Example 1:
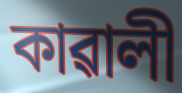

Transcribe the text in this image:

কাৱালী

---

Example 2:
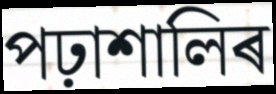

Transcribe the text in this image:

পঢ়াশালিৰ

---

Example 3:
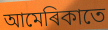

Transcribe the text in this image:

আমেৰিকাতে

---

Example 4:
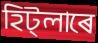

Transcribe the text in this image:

হিট্‌লাৰে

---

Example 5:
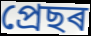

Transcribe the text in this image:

প্ৰেছৰ